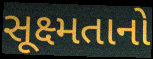
સૂક્ષ્મતાનો